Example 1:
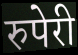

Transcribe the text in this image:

रुपेरी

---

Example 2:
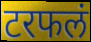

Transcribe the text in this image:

टरफलं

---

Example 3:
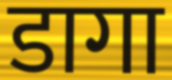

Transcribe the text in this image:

डागा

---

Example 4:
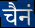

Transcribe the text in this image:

चैनं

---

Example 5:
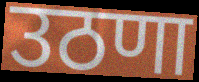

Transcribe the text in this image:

उठणा